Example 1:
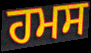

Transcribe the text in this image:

ਹਮਸ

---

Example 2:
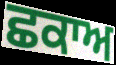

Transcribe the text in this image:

ਛਕਾਅ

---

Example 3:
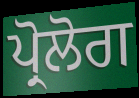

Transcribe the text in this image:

ਪ੍ਰੋਲੋਗ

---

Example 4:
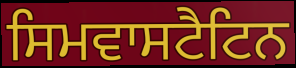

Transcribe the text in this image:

ਸਿਮਵਾਸਟੈਟਿਨ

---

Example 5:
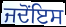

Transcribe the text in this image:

ਜਦੋਂਇਸ